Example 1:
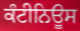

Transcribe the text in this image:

ਕੰਟੀਨਿਊਸ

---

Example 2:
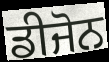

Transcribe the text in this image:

ਡੀਜੋਨ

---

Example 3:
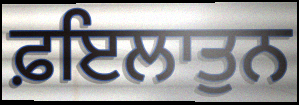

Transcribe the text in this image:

ਫ਼ਇਲਾਤੁਨ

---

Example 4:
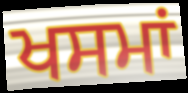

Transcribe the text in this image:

ਖਸਮਾਂ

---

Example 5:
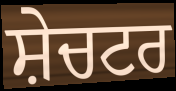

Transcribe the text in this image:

ਸ਼ੇਚਟਰ